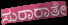
ಸುರಾರಾತೇ